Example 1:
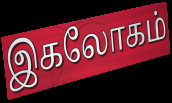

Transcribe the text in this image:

இகலோகம்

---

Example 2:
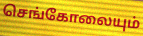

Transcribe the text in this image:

செங்கோலையும்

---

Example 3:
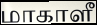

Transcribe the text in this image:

மாகாளீ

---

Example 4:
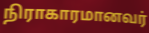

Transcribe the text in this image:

நிராகாரமானவர்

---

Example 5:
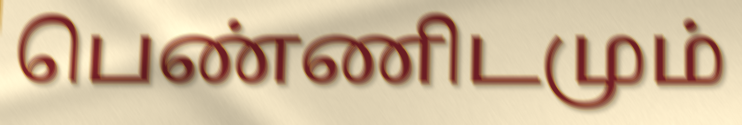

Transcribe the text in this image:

பெண்ணிடமும்